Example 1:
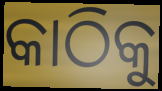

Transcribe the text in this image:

କାଠିକୁ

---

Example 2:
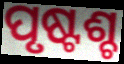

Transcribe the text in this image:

ପୃଷ୍ଟଶ୍ଚ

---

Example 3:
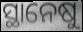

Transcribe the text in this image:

ସ୍ଥାନେଷୁ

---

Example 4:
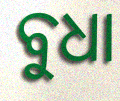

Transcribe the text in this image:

ବୁଧା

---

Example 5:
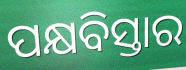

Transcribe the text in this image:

ପକ୍ଷବିସ୍ତାର